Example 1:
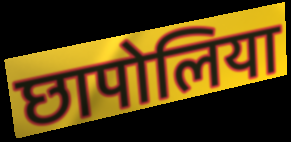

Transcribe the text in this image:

छापोलिया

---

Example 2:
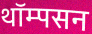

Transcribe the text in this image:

थॉम्पसन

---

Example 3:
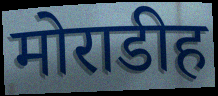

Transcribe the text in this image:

मोराडीह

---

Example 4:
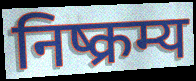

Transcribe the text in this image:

निष्क्रम्य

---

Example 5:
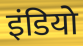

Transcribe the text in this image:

इंडियो